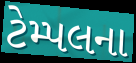
ટેમ્પલના